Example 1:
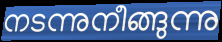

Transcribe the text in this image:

നടന്നുനീങ്ങുന്നു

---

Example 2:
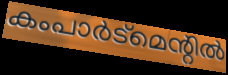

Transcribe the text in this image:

കംപാർട്മെന്റിൽ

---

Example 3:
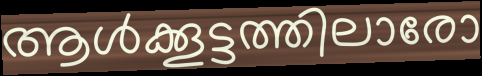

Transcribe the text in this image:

ആൾക്കൂട്ടത്തിലാരോ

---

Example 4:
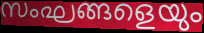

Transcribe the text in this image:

സംഘങ്ങളെയും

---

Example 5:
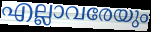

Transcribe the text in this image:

എല്ലാവരേയും